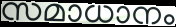
സമാധാനം